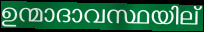
ഉന്മാദാവസ്ഥയില്